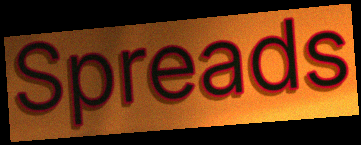
Spreads